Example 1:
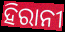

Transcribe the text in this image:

ହିରାନୀ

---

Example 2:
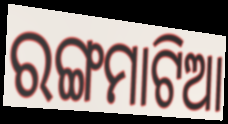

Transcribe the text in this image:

ରଙ୍ଗମାଟିଆ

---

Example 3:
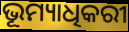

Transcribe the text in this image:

ଭୂମ୍ୟାଧିକରୀ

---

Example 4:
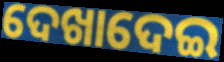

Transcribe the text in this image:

ଦେଖାଦେଇ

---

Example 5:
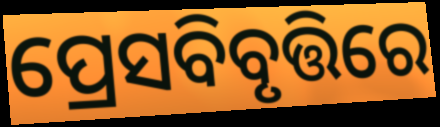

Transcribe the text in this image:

ପ୍ରେସବିବୃତ୍ତିରେ